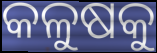
କଳୁଷକୁ